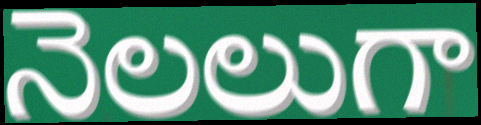
నెలలుగా